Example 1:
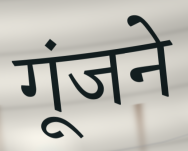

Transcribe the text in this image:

गूंजने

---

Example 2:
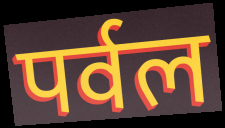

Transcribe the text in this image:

पर्वल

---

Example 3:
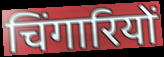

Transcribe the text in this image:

चिंगारियों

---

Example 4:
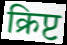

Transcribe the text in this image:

क्रिप्ट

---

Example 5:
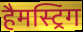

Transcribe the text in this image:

हैमस्ट्रिंग